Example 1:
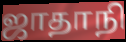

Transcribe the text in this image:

ஜாதாநி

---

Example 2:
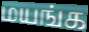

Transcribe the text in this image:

மயங்க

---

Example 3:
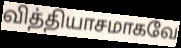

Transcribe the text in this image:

வித்தியாசமாகவே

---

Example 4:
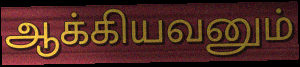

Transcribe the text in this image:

ஆக்கியவனும்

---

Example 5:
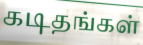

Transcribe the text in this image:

கடிதங்கள்